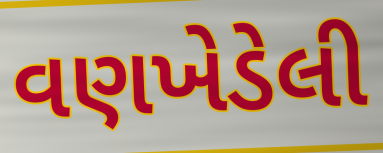
વણખેડેલી